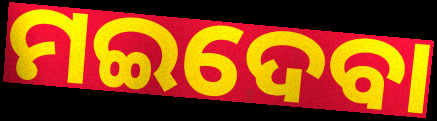
ମଇଦେବା